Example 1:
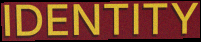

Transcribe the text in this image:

IDENTITY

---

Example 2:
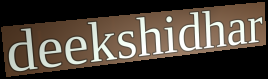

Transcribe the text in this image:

deekshidhar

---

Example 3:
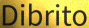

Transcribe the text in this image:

Dibrito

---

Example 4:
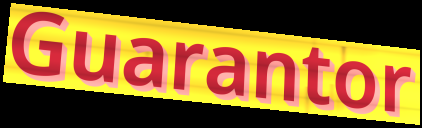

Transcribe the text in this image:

Guarantor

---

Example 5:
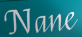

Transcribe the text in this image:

Nane